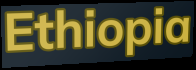
Ethiopia